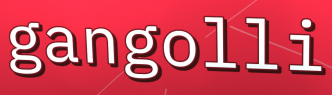
gangolli